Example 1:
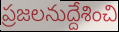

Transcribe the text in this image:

ప్రజలనుద్దేశించి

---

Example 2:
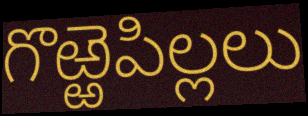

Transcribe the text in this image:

గొఱ్ఱెపిల్లలు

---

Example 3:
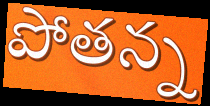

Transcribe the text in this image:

పోతన్న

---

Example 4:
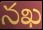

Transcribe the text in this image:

నఖ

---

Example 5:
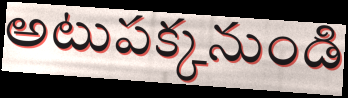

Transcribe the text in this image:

అటుపక్కనుండి